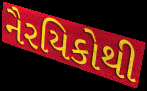
નૈરયિકોથી